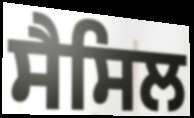
ਸੈਸਿਲ